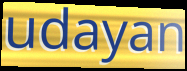
udayan